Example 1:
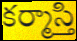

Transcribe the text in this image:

కర్మాస్తి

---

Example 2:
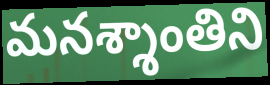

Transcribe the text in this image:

మనశ్శాంతిని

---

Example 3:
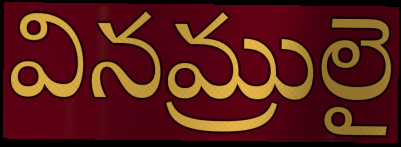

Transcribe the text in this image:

వినమ్రులై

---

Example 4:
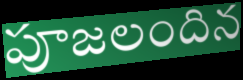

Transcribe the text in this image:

పూజలందిన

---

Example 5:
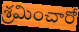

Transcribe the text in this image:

శ్రమించారో